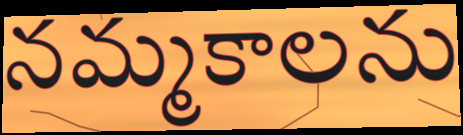
నమ్మకాలను